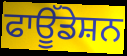
ਫਾਊੱਡੇਸ਼ਨ